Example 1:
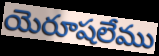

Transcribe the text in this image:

యెరూషలేము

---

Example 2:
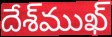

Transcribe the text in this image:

దేశ్‌ముఖ్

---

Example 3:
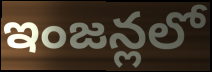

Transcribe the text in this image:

ఇంజన్లలో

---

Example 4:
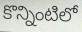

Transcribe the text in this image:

కొన్నింటిలో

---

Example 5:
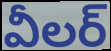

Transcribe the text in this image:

వీలర్